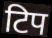
टिप